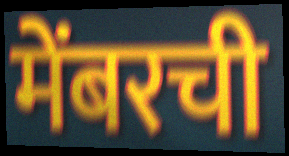
मेंबरची